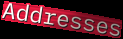
Addresses